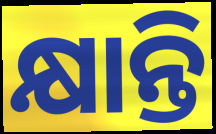
କ୍ଷାନ୍ତି